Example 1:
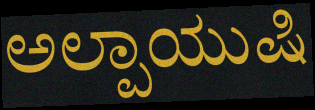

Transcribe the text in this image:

ಅಲ್ಪಾಯುಷಿ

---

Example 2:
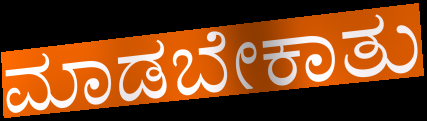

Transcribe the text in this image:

ಮಾಡಬೇಕಾತು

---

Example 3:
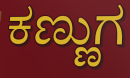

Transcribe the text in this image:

ಕಣ್ಣುಗ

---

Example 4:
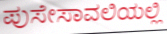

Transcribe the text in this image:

ಪುಸೇಸಾವಲಿಯಲ್ಲಿ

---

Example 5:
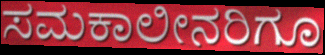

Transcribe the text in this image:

ಸಮಕಾಲೀನರಿಗೂ